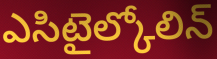
ఎసిటైల్కోలిన్